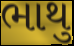
ભાથુ